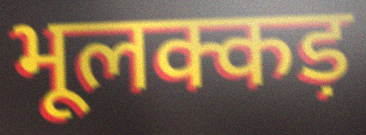
भूलक्कड़